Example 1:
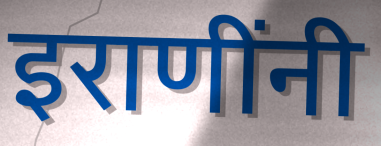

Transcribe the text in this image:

इराणींनी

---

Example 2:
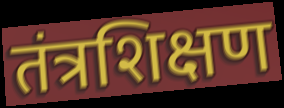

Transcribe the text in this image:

तंत्रशिक्षण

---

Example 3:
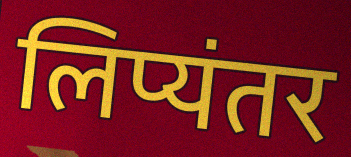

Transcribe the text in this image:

लिप्यंतर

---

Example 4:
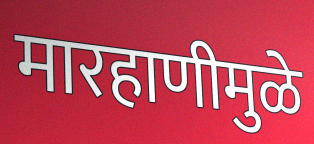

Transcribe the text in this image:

मारहाणीमुळे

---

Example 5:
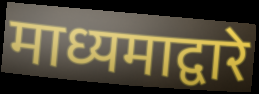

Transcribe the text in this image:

माध्यमाद्वारे